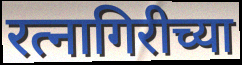
रत्नागिरीच्या